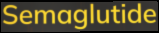
Semaglutide